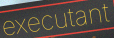
executant